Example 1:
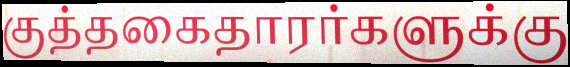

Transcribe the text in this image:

குத்தகைதாரர்களுக்கு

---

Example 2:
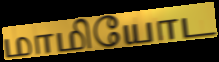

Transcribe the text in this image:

மாமியோட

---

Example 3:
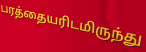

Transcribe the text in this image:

பரத்தையரிடமிருந்து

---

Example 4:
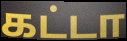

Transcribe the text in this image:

கட்டா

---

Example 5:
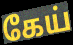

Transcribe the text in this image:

கேய்